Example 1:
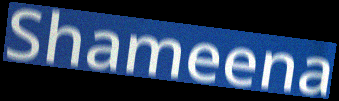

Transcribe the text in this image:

Shameena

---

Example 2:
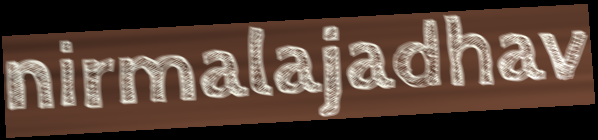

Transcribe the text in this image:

nirmalajadhav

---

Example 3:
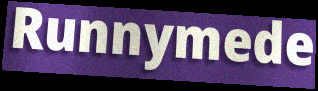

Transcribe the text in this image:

Runnymede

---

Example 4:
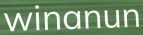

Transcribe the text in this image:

winanun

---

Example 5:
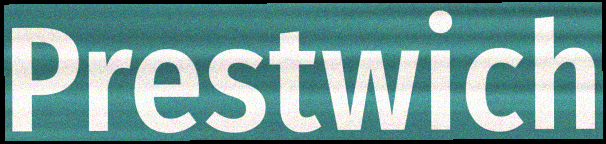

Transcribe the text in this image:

Prestwich